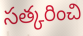
సత్కరించి